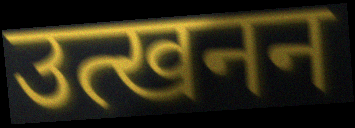
उत्खनन